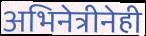
अभिनेत्रीनेही